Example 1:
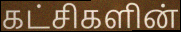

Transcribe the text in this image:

கட்சிகளின்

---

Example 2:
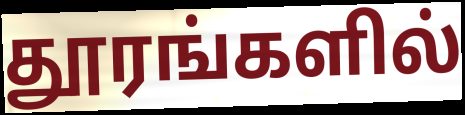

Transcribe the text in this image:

தூரங்களில்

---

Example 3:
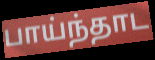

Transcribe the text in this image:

பாய்ந்தாட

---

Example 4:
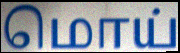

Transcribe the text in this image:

மொய்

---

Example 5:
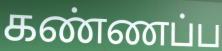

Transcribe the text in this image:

கண்ணப்ப